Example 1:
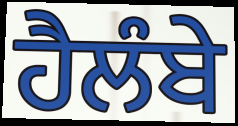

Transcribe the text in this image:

ਹੈਲੰਬੇ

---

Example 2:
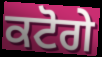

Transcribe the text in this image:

ਕਟੋਗੇ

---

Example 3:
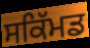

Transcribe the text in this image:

ਸਕਿੱਮਡ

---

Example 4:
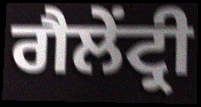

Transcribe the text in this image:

ਗੈਲੇਂਟ੍ਰੀ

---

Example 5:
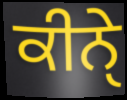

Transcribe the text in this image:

ਕੀਨੇੑ